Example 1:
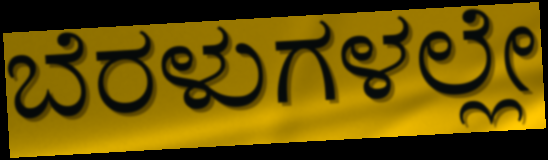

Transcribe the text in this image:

ಬೆರಳುಗಳಲ್ಲೇ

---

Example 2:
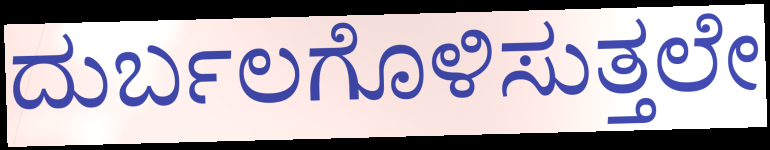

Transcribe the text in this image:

ದುರ್ಬಲಗೊಳಿಸುತ್ತಲೇ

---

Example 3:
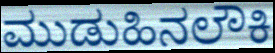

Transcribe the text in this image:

ಮುಡುಹಿನಲೌಕಿ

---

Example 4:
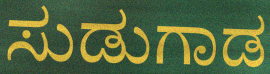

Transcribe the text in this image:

ಸುಡುಗಾಡ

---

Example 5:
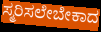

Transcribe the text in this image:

ಸ್ಮರಿಸಲೇಬೇಕಾದ